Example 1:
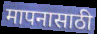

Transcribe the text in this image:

मापनासाठी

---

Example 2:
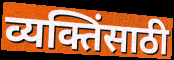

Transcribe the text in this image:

व्यक्तिंसाठी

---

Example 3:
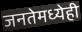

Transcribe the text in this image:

जनतेमध्येही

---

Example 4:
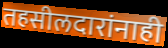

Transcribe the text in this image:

तहसीलदारांनाही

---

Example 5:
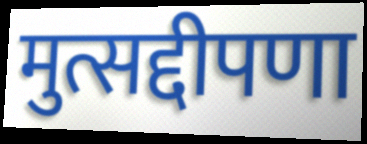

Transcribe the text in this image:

मुत्सद्दीपणा